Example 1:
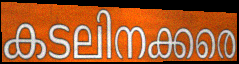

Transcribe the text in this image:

കടലിനക്കരെ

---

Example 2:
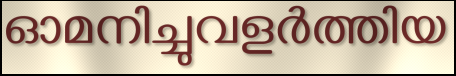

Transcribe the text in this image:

ഓമനിച്ചുവളർത്തിയ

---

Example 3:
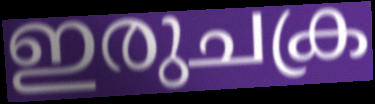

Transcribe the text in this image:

ഇരുചക്ര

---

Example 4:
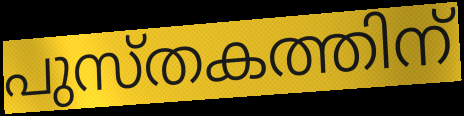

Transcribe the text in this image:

പുസ്തകത്തിന്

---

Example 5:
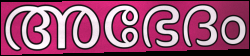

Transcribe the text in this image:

അഭേദം